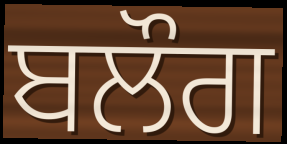
ਬਲੌਗ